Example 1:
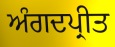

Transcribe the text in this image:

ਅੰਗਦਪ੍ਰੀਤ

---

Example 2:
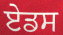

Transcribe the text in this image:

ਏਡਸ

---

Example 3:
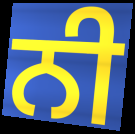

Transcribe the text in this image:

ਨੀ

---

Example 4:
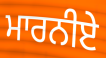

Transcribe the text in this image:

ਮਾਰਨੀਏ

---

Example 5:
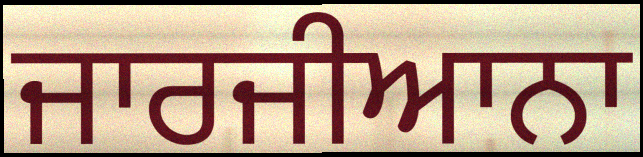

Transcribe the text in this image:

ਜਾਰਜੀਆਨਾ